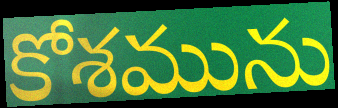
కోశమును